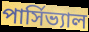
পার্সিভ্যাল